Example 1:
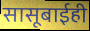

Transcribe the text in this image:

सासूबाईही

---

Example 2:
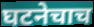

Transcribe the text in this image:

घटनेचाच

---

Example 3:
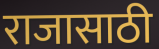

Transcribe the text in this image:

राजासाठी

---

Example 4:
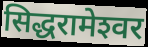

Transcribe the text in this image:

सिद्धरामेश्‍वर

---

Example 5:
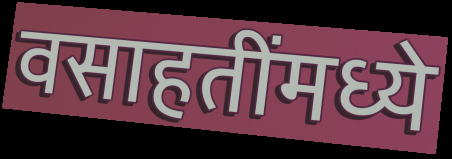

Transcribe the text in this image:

वसाहतींमध्ये